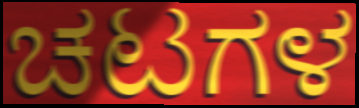
ಚಟಗಳ